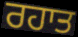
ਰਹਾਤ